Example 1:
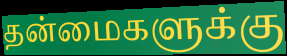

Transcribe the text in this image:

தன்மைகளுக்கு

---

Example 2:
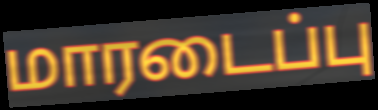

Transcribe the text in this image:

மாரடைப்பு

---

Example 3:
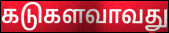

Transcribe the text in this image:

கடுகளவாவது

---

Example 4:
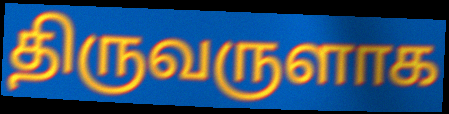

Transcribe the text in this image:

திருவருளாக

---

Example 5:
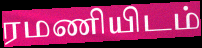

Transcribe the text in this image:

ரமணியிடம்